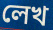
লেখ